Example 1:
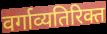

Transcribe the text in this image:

वर्गाव्यतिरिक्त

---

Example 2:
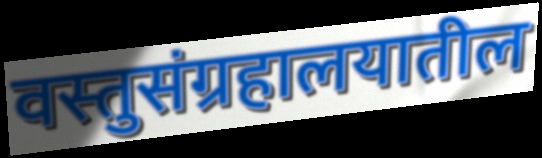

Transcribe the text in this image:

वस्तुसंग्रहालयातील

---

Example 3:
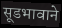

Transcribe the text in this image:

सूडभावाने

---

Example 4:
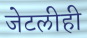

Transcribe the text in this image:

जेटलीही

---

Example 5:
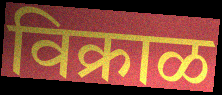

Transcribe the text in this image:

विक्राळ